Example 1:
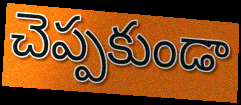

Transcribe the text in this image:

చెప్పకుండా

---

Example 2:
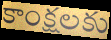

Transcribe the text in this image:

కాంక్షలకు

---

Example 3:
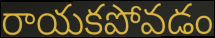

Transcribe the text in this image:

రాయకపోవడం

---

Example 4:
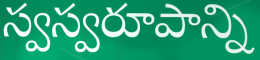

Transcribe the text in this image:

స్వస్వరూపాన్ని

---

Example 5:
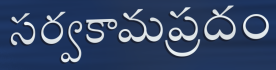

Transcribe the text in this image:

సర్వకామప్రదం